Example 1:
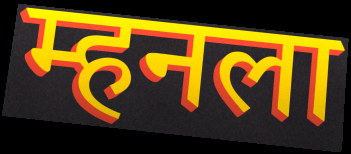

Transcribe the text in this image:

म्हनला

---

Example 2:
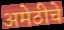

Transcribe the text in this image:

अमेठीचे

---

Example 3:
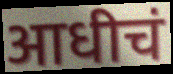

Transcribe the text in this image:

आधीचं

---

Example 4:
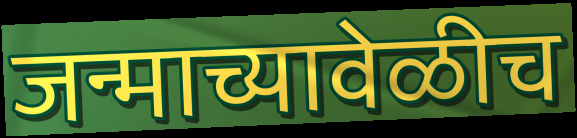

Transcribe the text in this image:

जन्माच्यावेळीच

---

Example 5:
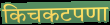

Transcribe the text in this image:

किचकटपणा